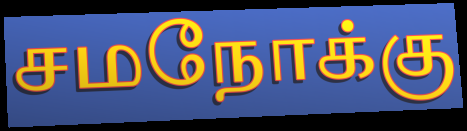
சமநோக்கு